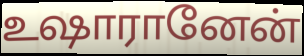
உஷாரானேன்